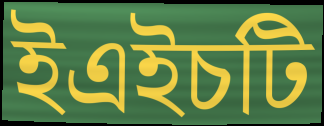
ইএইচটি